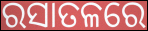
ରସାତଳରେ